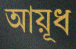
আয়ূধ